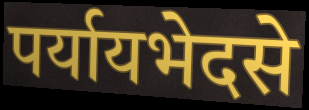
पर्यायभेदसे